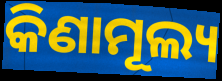
କିଣାମୂଲ୍ୟ